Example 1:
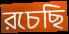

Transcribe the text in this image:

রচেছি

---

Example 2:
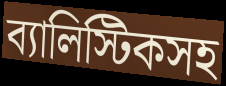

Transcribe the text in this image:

ব্যালিস্টিকসহ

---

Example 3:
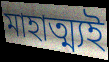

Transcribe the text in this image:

মাহাত্ম্যই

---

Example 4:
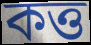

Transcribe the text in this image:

কত্ত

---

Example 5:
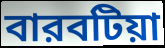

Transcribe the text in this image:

বারবটিয়া